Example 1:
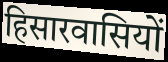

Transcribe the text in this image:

हिसारवासियों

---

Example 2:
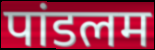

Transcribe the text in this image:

पांडलम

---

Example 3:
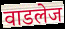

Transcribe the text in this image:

वाडलेज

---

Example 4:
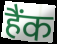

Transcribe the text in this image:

हैंक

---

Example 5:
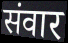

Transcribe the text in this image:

संवार